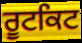
ਰੂਟਕਿਟ